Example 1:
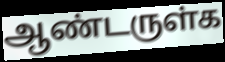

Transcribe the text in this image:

ஆண்டருள்க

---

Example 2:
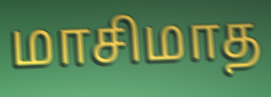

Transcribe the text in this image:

மாசிமாத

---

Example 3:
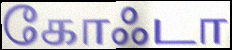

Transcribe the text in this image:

கோஃடா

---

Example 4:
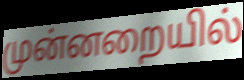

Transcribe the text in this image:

முன்னறையில்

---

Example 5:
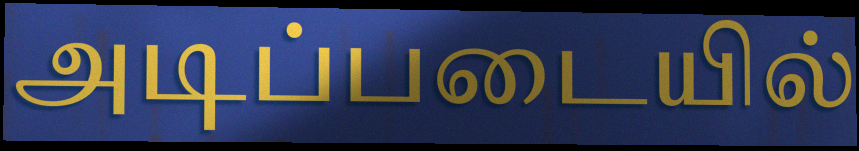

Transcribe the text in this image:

அடிப்படையில்